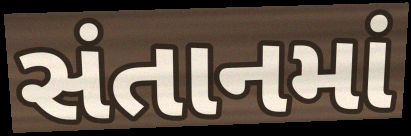
સંતાનમાં